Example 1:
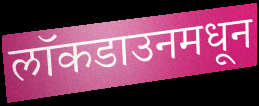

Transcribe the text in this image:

लॉकडाउनमधून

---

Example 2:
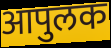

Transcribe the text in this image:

आपुलक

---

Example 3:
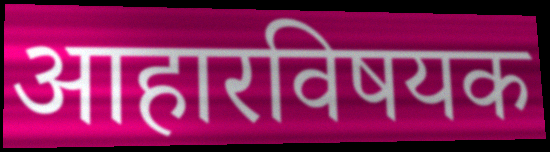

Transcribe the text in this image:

आहारविषयक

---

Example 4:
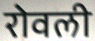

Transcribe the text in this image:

रोवली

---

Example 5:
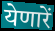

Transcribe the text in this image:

येणारें